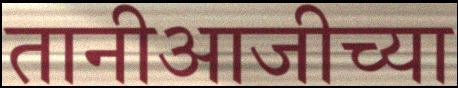
तानीआजीच्या